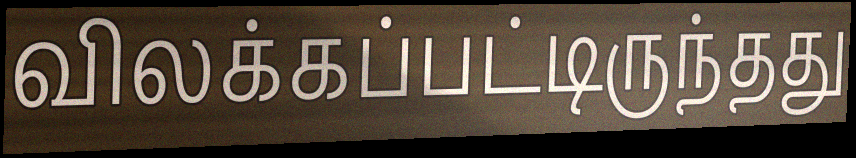
விலக்கப்பட்டிருந்தது